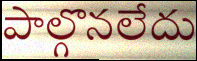
పాల్గొనలేదు